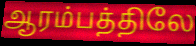
ஆரம்பத்திலே